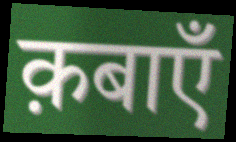
क़बाएँ